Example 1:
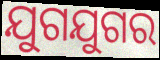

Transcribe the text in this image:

ଯୁଗଯୁଗର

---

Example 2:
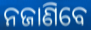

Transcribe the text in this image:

ନଜାଣିବେ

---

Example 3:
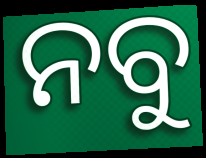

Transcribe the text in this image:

ନବୁ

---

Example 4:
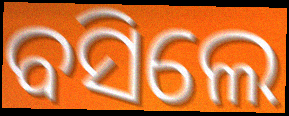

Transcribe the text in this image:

ବସିଲେ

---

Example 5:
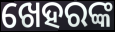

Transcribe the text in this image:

ଖେହରଙ୍କ